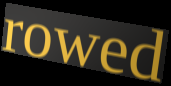
rowed